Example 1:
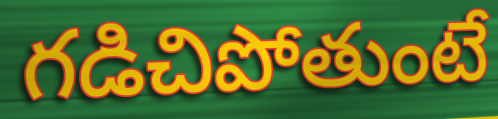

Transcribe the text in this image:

గడిచిపోతుంటే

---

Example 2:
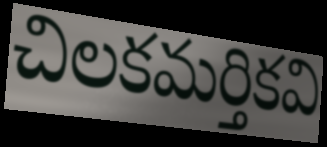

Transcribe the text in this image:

చిలకమర్తికవి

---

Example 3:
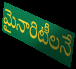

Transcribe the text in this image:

మైనారిటీలనే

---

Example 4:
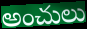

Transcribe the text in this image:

అంచులు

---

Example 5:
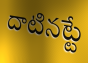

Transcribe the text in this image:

దాటినట్టే